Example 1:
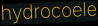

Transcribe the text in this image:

hydrocoele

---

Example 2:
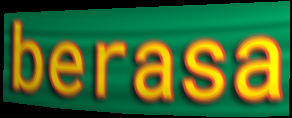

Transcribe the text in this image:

berasa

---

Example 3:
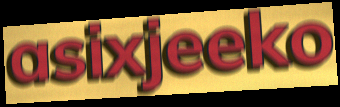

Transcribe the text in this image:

asixjeeko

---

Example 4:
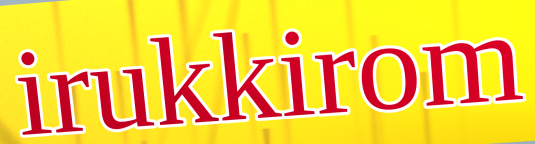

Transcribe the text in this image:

irukkirom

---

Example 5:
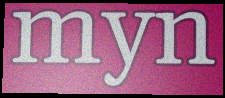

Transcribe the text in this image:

myn